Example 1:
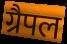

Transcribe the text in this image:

ग्रैपल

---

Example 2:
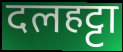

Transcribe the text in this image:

दलहट्टा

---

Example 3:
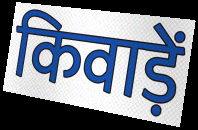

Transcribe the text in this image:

किवाड़ें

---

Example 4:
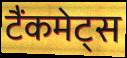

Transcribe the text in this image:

टैंकमेट्स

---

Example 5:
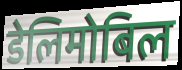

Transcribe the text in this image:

डेलिमोबिल